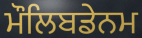
ਮੌਲਿਬਡੇਨਮ